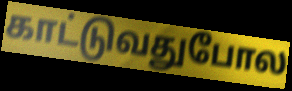
காட்டுவதுபோல